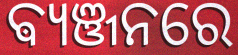
ଵ୍ୟଞ୍ଜନରେ